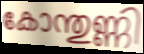
കോന്തുണ്ണി